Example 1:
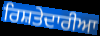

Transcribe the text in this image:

ਰਿਸ਼ਤੇਦਾਰੀਆ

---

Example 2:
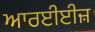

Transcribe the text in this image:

ਆਰਈਈਜ਼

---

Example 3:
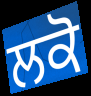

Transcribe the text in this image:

ਲਕੋ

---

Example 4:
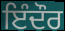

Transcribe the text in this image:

ਇੰਦੌਰ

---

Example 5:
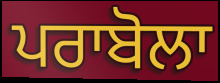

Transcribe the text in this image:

ਪਰਾਬੋਲਾ